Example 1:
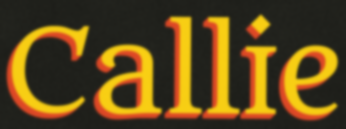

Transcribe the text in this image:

Callie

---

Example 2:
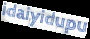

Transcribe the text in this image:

idaiyidupu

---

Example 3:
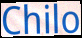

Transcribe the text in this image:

Chilo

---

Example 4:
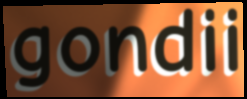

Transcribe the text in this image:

gondii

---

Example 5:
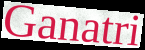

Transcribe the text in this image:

Ganatri